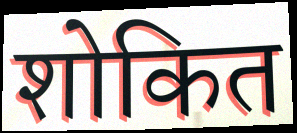
शोकित